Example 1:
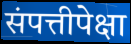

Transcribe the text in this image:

संपत्तीपेक्षा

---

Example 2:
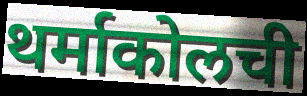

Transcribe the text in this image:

थर्माकोलची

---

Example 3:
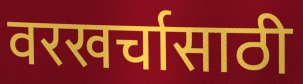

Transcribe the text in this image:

वरखर्चासाठी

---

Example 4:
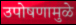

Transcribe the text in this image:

उपोषणामुळे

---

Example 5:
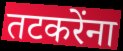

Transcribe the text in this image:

तटकरेंना